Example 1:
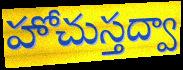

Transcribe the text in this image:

హోచుస్తద్వా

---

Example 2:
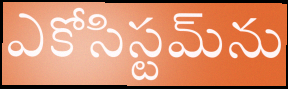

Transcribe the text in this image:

ఎకోసిస్టమ్‌ను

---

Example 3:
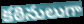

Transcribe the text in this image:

కఠినులుగా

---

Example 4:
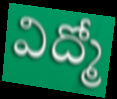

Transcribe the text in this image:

విద్మో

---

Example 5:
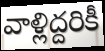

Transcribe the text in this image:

వాళ్లిద్దరికీ